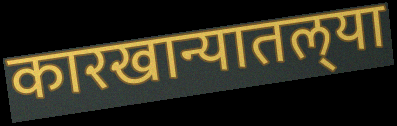
कारखान्यातल्या